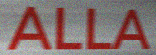
ALLA